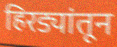
हिरड्यांतून